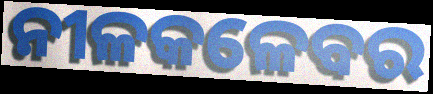
ନୀଳକଳେବର